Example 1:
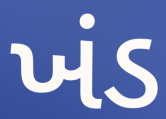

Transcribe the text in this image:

ખંડ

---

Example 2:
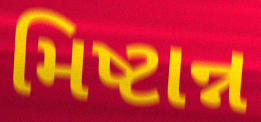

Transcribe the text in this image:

મિષ્ટાન્ન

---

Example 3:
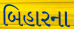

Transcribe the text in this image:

બિહારના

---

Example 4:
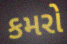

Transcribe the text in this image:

કમરો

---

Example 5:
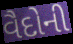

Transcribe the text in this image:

વૈદોની